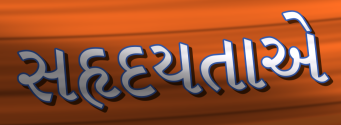
સહૃદયતાએ